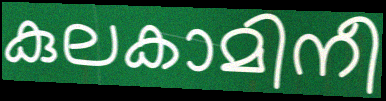
കുലകാമിനീ